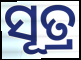
ସୂତ୍ର